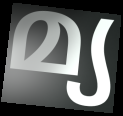
മ്യ